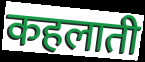
कहलाती